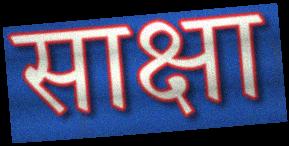
साक्षा